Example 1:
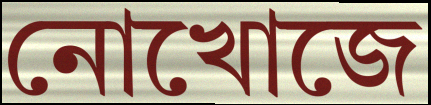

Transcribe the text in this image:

নোখোজে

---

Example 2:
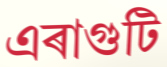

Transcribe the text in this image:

এৰাগুটি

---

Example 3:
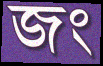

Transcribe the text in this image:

জং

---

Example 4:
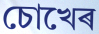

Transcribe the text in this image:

চোখেৰ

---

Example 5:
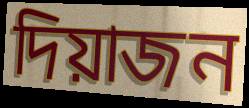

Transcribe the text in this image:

দিয়াজন